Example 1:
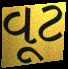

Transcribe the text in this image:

વૂટ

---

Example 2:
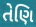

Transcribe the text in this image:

તેણિ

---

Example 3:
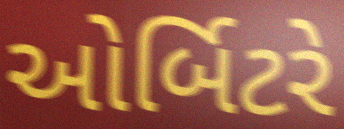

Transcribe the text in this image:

ઓર્બિટરે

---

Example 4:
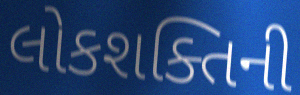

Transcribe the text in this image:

લોકશક્તિની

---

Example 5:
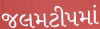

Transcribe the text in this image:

જલમટીપમાં